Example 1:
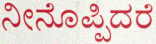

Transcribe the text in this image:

ನೀನೊಪ್ಪಿದರೆ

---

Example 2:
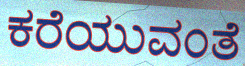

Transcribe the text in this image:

ಕರೆಯುವಂತೆ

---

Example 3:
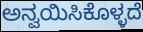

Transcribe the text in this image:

ಅನ್ವಯಿಸಿಕೊಳ್ಳದೆ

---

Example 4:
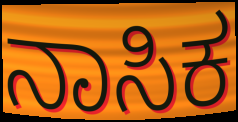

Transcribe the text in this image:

ನಾಸಿಕ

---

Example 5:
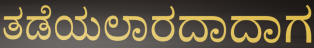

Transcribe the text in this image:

ತಡೆಯಲಾರದಾದಾಗ